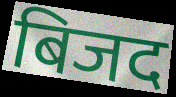
बिजद